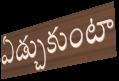
ఏడ్చుకుంటా